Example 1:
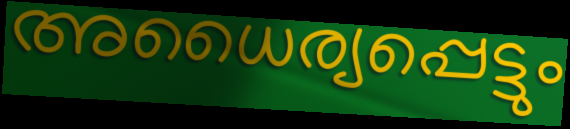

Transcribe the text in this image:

അധൈര്യപ്പെട്ടും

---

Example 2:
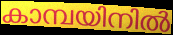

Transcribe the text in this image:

കാമ്പയിനിൽ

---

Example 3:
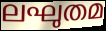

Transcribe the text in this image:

ലഘുതമ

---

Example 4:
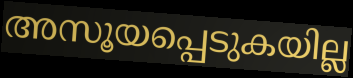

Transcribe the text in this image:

അസൂയപ്പെടുകയില്ല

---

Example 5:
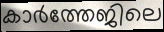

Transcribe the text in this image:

കാർത്തേജിലെ